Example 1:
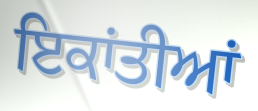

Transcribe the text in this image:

ਇਕਾਂਤੀਆਂ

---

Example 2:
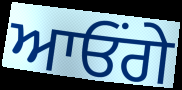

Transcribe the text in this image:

ਆਓਂਗੇ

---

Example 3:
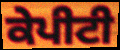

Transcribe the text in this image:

ਕੇਪੀਟੀ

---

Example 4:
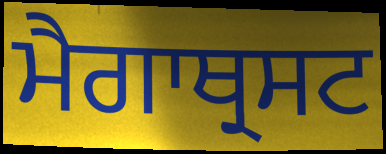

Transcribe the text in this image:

ਮੈਗਾਥ੍ਰਸਟ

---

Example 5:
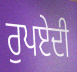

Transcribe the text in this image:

ਰੁਪਏਦੀ